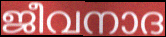
ജീവനാദ